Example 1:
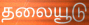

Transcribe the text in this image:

தலையூடு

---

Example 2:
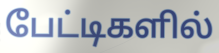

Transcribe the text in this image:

பேட்டிகளில்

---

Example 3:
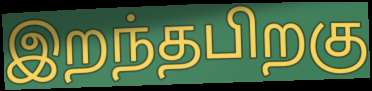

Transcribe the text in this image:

இறந்தபிறகு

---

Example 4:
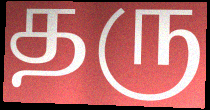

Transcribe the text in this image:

தரு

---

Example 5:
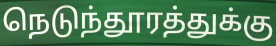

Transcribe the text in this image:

நெடுந்தூரத்துக்கு